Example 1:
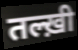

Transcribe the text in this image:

तल्ख़ी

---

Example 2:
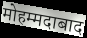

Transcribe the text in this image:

मोहम्मदाबाद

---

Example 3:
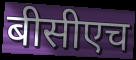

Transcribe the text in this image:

बीसीएच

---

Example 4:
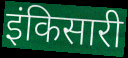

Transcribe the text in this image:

इंकिसारी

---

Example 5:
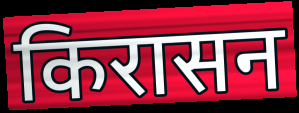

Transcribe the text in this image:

किरासन